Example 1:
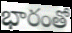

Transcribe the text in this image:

భారంతో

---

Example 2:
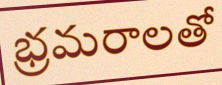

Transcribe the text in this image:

భ్రమరాలతో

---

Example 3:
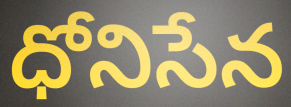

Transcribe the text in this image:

ధోనిసేన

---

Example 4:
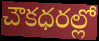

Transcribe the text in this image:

చౌకధరల్లో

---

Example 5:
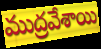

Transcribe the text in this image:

ముద్రవేశాయి